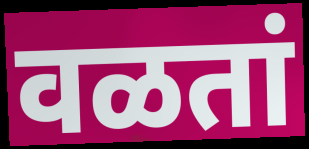
वळतां